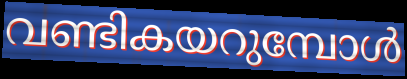
വണ്ടികയറുമ്പോൾ